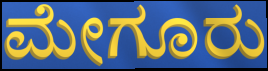
ಮೇಗೂರು